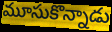
మూసుకొన్నాడు